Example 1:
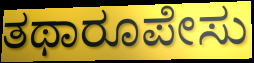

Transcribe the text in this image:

ತಥಾರೂಪೇಸು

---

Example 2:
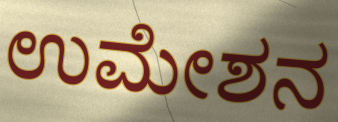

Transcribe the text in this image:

ಉಮೇಶನ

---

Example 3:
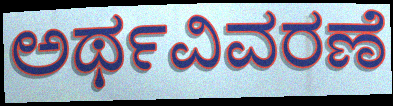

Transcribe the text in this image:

ಅರ್ಥವಿವರಣೆ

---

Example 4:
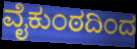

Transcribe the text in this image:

ವೈಕುಂಠದಿಂದ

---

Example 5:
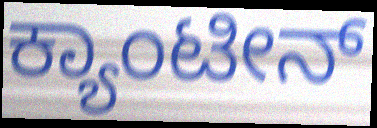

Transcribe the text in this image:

ಕ್ಯಾಂಟೀನ್